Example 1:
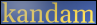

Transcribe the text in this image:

kandam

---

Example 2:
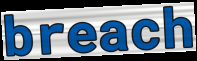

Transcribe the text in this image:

breach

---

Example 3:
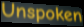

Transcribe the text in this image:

Unspoken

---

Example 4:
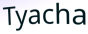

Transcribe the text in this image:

Tyacha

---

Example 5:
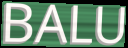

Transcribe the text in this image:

BALU